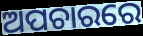
ଅପଚାରରେ